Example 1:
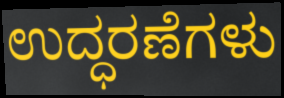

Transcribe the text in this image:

ಉದ್ಧರಣೆಗಳು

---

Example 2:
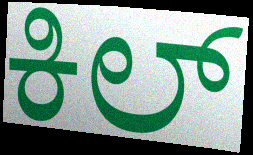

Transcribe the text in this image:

ಕಿಲ್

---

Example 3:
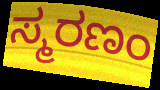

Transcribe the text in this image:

ಸ್ಮರಣಂ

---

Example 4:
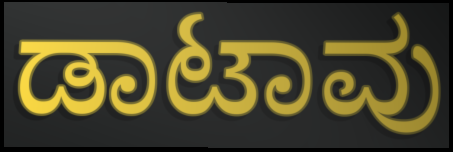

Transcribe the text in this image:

ಡಾಟಾವು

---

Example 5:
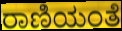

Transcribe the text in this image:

ರಾಣಿಯಂತೆ